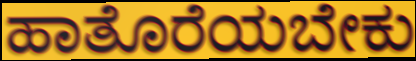
ಹಾತೊರೆಯಬೇಕು